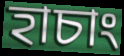
হাচাং